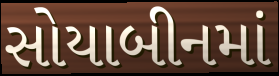
સોયાબીનમાં